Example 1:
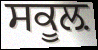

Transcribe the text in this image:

ਸਕੂਲ਼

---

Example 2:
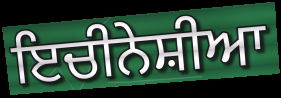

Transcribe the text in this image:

ਇਚੀਨੇਸ਼ੀਆ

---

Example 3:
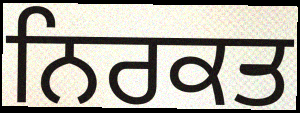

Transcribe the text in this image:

ਨਿਰਕਤ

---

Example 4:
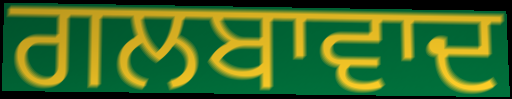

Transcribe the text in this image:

ਗਲਬਾਵਾਦ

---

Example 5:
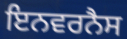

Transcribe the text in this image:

ਇਨਵਰਨੈਸ